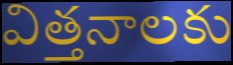
విత్తనాలకు